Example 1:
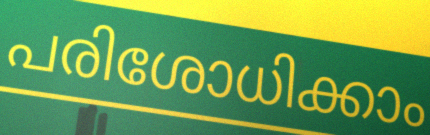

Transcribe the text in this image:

പരിശോധിക്കാം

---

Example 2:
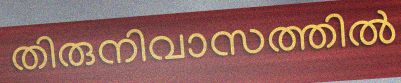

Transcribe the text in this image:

തിരുനിവാസത്തിൽ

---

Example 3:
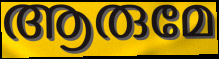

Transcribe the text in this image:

ആരുമേ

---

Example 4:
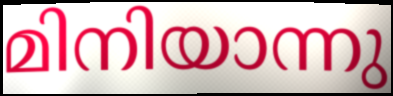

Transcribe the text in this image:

മിനിയാന്നു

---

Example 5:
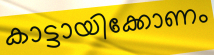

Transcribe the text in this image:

കാട്ടായിക്കോണം